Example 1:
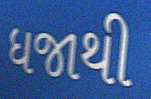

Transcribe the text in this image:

ધજાથી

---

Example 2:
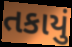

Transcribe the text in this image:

તકાયું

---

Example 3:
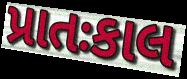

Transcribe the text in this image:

પ્રાતઃકાલ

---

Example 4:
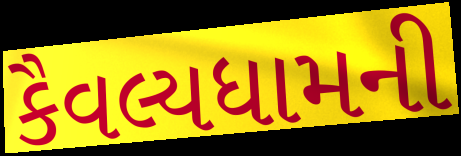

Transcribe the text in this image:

કૈવલ્યધામની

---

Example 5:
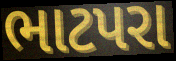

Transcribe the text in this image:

ભાટપરા